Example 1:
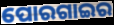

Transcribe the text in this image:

ପୋରଗାଇର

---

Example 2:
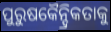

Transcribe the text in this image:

ପୁରୁଷକୈନ୍ଦ୍ରିକତାକୁ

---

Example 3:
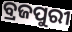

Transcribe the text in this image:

ବ୍ରଜପୁରୀ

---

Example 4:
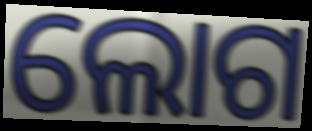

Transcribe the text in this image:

ଲୋଗ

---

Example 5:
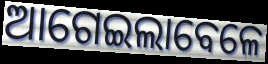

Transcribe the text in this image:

ଆଗେଇଲାବେଳେ